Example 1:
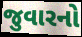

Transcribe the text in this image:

જુવારનો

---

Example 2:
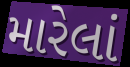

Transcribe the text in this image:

મારેલાં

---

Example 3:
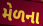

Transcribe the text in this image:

મેળના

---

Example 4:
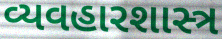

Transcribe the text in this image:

વ્યવહારશાસ્ત્ર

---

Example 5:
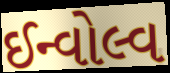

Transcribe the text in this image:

ઈન્વોલ્વ